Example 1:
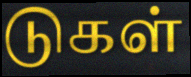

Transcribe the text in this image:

டுகள்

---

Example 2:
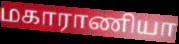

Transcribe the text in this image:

மகாராணியா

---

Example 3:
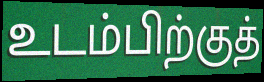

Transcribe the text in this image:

உடம்பிற்குத்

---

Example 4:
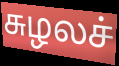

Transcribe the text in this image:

சுழலச்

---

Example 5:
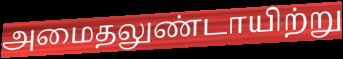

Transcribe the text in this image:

அமைதலுண்டாயிற்று